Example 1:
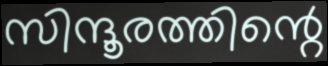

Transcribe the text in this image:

സിന്ദൂരത്തിന്റെ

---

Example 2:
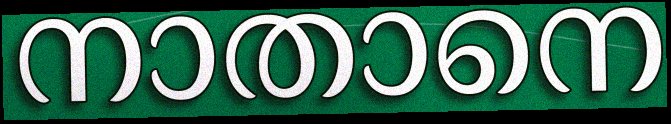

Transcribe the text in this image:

നാതാനെ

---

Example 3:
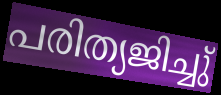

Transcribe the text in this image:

പരിത്യജിച്ചു്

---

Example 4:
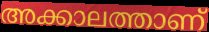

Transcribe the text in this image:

അക്കാലത്താണ്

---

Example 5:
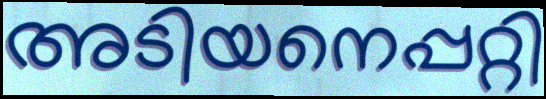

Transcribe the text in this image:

അടിയനെപ്പറ്റി